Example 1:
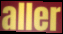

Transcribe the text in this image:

aller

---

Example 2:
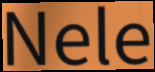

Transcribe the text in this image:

Nele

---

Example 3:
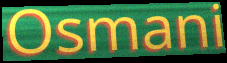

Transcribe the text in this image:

Osmani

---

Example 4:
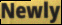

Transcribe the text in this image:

Newly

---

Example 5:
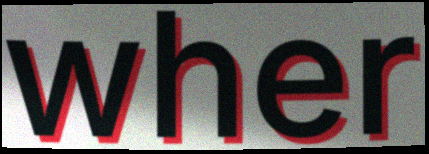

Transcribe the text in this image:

wher